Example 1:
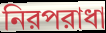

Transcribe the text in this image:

নিরপরাধা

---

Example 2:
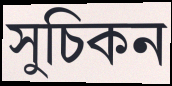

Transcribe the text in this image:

সুচিকন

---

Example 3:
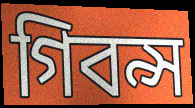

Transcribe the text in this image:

গিবন্স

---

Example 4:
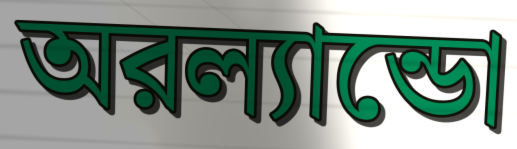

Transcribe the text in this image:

অরল্যান্ডো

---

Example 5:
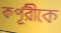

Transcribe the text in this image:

কর্পূরীকে